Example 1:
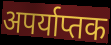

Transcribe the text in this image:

अपर्याप्तक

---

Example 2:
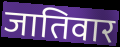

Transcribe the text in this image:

जातिवार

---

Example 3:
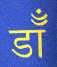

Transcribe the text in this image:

डॉँ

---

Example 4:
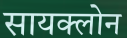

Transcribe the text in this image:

सायक्लोन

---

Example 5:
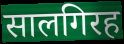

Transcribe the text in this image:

सालगिरह